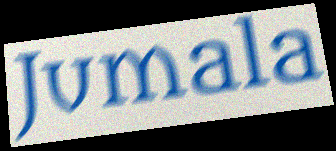
Jumala